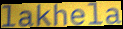
lakhela